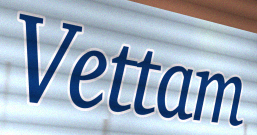
Vettam